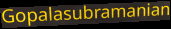
Gopalasubramanian